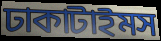
ঢাকাটাইমস